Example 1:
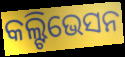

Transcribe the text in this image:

କଲ୍ଟିଭେସନ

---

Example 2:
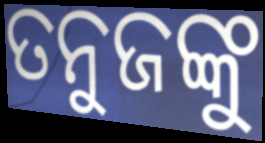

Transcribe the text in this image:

ତନୁଜଙ୍କୁ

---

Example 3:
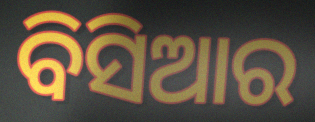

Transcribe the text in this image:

ବିସିଆର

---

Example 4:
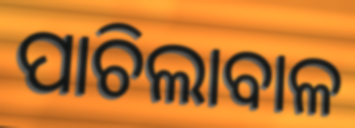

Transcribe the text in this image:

ପାଚିଲାବାଳ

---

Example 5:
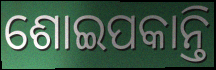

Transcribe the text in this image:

ଶୋଇପକାନ୍ତି